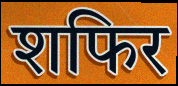
शफिर